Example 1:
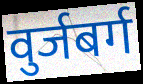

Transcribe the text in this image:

वुर्जबर्ग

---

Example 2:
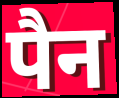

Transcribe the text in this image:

पैन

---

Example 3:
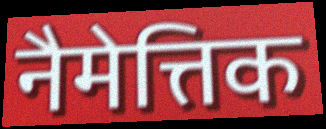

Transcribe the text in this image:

नैमेत्तिक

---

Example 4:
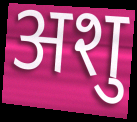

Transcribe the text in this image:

अशु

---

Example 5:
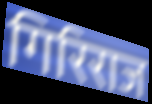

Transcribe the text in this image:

गिरिराज